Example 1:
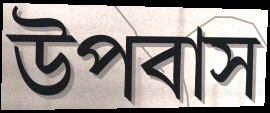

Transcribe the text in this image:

উপবাস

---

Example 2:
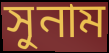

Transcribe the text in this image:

সুনাম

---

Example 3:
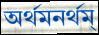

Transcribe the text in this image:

অর্থমনর্থম্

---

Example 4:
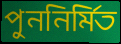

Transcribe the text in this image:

পুননির্মিত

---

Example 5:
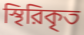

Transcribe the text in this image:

স্থিরিকৃত